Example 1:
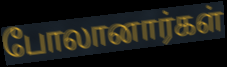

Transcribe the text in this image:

போலானார்கள்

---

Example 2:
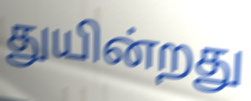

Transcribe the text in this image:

துயின்றது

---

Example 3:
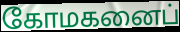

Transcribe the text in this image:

கோமகனைப்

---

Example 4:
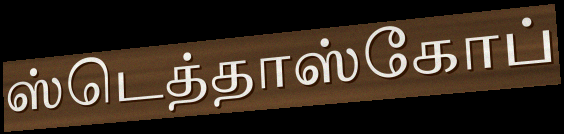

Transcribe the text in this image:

ஸ்டெத்தாஸ்கோப்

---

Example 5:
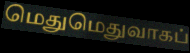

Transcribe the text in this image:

மெதுமெதுவாகப்